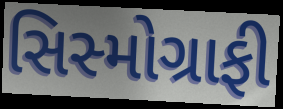
સિસ્મોગ્રાફી